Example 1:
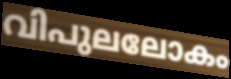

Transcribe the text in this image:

വിപുലലോകം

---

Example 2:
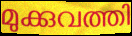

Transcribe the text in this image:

മുക്കുവത്തി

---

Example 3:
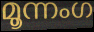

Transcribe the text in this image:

മൂന്നംഗ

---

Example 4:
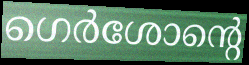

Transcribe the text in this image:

ഗെർശോന്റെ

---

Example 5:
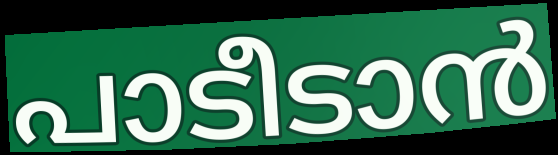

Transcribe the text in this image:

പാടീടാൻ